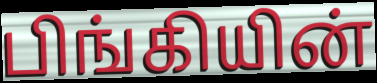
பிங்கியின்